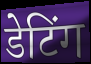
डेटिंग